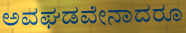
ಅವಘಡವೇನಾದರೂ